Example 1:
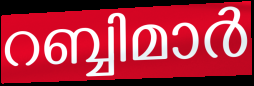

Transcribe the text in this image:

റബ്ബിമാർ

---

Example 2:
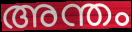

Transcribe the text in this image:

അന്തം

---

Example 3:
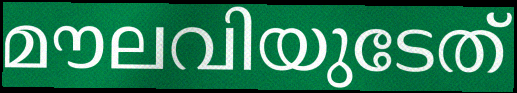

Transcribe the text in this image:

മൗലവിയുടേത്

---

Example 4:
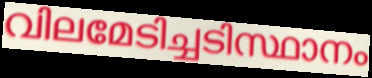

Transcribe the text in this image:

വിലമേടിച്ചടിസ്ഥാനം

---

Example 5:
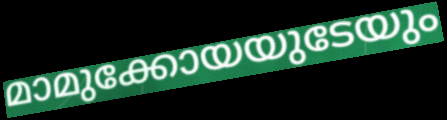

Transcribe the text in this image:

മാമുക്കോയയുടേയും